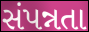
સંપન્નતા